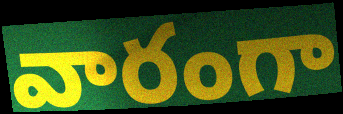
వారంగా